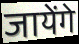
जायेंगे